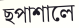
ছপাশালে